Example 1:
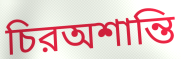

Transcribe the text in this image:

চিরঅশান্তি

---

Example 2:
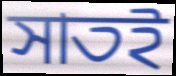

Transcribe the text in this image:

সাতই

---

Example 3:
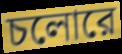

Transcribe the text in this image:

চলোরে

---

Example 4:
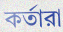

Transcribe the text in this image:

কর্তারা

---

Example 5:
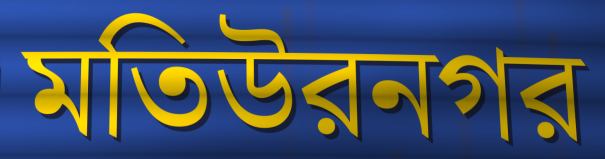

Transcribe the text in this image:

মতিউরনগর